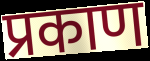
प्रकाण